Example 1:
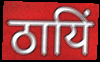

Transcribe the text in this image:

ठायिं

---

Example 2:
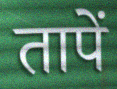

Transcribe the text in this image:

तापें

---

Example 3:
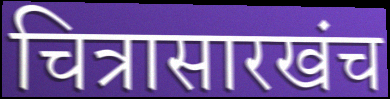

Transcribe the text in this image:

चित्रासारखंच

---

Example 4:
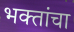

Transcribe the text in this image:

भक्तांचा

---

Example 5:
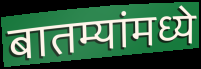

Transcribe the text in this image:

बातम्यांमध्ये